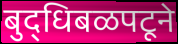
बुद्धिबळपटूने